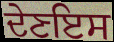
ਦੇਣਇਸ